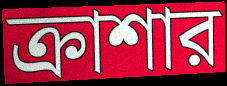
ক্রাশার